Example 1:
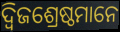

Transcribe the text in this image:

ଦ୍ୱିଜଶ୍ରେଷ୍ଠମାନେ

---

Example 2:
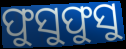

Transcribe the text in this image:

ଫୁସୁଫୁସୁ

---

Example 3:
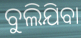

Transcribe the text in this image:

ବୁଲିଯିବା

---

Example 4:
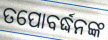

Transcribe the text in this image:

ତପୋବର୍ଦ୍ଧନଙ୍କ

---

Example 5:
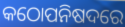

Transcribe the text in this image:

କଠୋପନିଷଦରେ